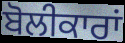
ਬੋਲੀਕਾਰਾਂ